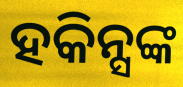
ହକିନ୍ସଙ୍କ